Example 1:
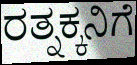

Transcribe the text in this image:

ರತ್ನಕ್ಕನಿಗೆ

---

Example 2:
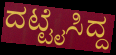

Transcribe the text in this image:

ದಟ್ಟೈಸಿದ್ದ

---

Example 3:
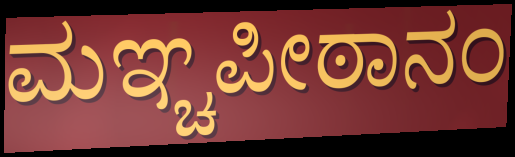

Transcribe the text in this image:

ಮಞ್ಚಪೀಠಾನಂ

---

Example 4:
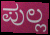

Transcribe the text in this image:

ಪುಲ್ಲ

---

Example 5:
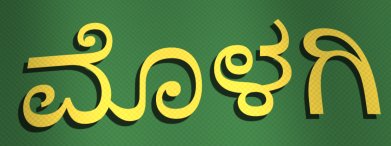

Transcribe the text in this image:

ಮೊಳಗಿ